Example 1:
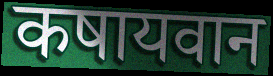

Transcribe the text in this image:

कषायवान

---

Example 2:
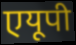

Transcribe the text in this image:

एयूपी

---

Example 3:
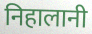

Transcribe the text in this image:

निहालानी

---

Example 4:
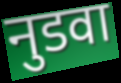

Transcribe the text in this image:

नुडवा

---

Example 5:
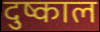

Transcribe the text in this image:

दुष्काल